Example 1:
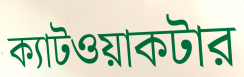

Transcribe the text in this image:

ক্যাটওয়াকটার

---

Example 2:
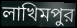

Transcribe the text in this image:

লাখিমপুর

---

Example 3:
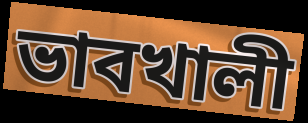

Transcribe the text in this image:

ভাবখালী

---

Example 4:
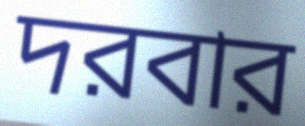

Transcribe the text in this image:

দরবার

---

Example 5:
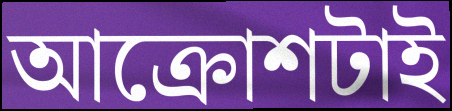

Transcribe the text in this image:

আক্রোশটাই